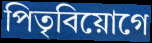
পিতৃবিয়োগে